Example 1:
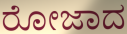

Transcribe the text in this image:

ರೋಜಾದ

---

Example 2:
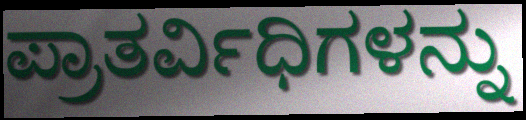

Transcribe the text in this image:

ಪ್ರಾತರ್ವಿಧಿಗಳನ್ನು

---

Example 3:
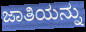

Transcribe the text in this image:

ಜಾತಿಯನ್ನು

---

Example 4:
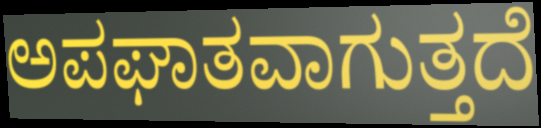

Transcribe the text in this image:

ಅಪಘಾತವಾಗುತ್ತದೆ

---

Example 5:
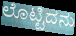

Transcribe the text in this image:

ಲೊಟ್ಟಿದನು